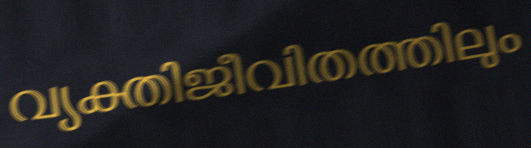
വ്യക്തിജീവിതത്തിലും